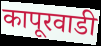
कापूरवाडी